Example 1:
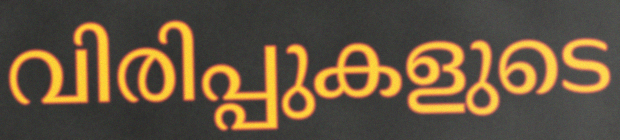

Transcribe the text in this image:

വിരിപ്പുകളുടെ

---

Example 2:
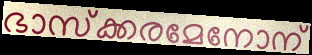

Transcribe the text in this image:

ഭാസ്ക്കരമേനോന്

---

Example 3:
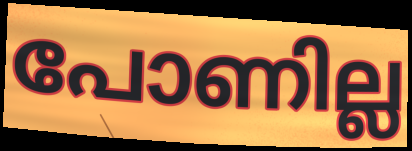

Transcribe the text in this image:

പോണില്ല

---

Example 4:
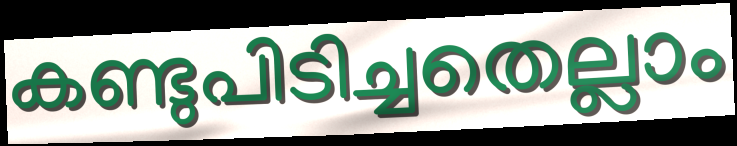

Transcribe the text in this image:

കണ്ടുപിടിച്ചതെല്ലാം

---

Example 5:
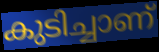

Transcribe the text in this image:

കുടിച്ചാണ്